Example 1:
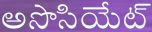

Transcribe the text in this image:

అసొసియేట్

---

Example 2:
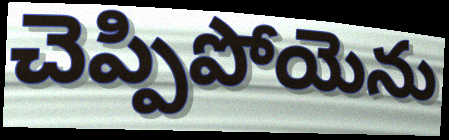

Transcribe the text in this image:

చెప్పిపోయెను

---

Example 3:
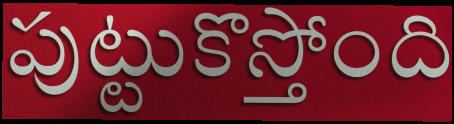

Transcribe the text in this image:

పుట్టుకొస్తోంది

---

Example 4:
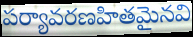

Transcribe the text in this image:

పర్యావరణహితమైనవి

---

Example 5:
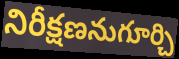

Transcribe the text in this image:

నిరీక్షణనుగూర్చి